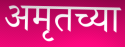
अमृतच्या